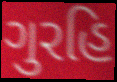
ગુરહિ